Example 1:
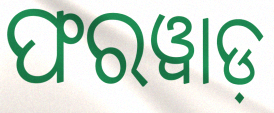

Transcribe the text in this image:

ଫରୱାଡ଼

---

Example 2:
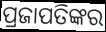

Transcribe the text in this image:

ପ୍ରଜାପତିଙ୍କର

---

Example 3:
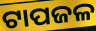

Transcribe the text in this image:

ଟାପଜଳ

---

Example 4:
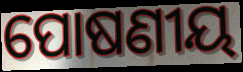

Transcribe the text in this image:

ପୋଷଣୀୟ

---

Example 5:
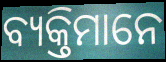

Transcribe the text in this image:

ବ୍ୟକ୍ତିମାନେ